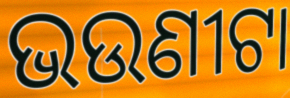
ଭଉଣୀଟା